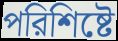
পরিশিষ্টে